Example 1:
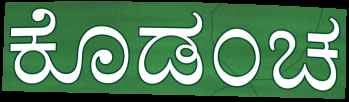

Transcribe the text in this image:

ಕೊಡಂಚ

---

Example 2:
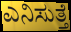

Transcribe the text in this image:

ಎನಿಸುತ್ತೆ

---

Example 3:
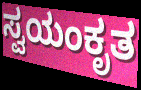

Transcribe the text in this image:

ಸ್ವಯಂಕೃತ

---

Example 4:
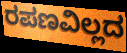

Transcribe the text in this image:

ರಪಣವಿಲ್ಲದ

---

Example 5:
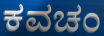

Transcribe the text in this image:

ಕವಚಂ